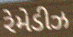
રેમેડીઝ